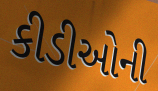
કીડીઓની